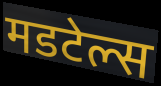
मडटेल्स